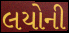
લયોની